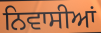
ਨਿਵਾਸੀਆਂ